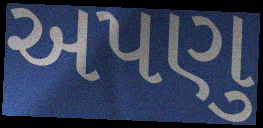
અપણુ